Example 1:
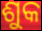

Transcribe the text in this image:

ଶୁକ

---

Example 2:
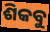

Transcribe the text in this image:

ଶିକବୁ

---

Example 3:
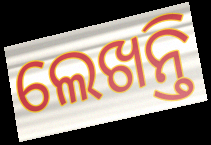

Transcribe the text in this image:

ଲେଖନ୍ତି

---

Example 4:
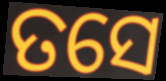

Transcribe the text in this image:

ତସେ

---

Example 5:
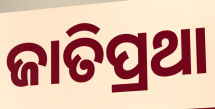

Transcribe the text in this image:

ଜାତିପ୍ରଥା